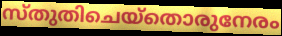
സ്തുതിചെയ്തൊരുനേരം